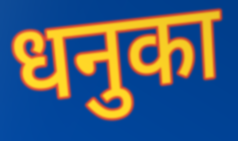
धनुका